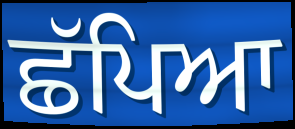
ਛੱਪਿਆ